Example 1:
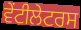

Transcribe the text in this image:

ਵੇਂਟੀਲੇਟਰਸ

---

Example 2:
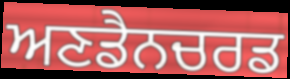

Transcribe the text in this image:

ਅਣਡੈਨਚਰਡ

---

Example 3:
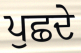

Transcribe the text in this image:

ਪੁਛਦੇ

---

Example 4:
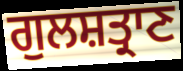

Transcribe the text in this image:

ਗੁਲਸ਼ਤ੍ਰਾਣ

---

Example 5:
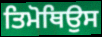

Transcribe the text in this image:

ਤਿਮੋਥਿਉਸ